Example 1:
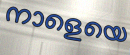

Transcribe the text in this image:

നാളെയെ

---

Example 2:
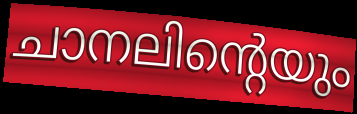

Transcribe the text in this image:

ചാനലിന്റെയും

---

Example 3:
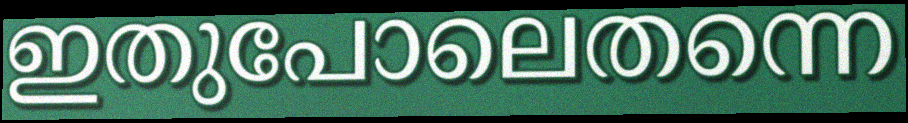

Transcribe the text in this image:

ഇതുപോലെതന്നെ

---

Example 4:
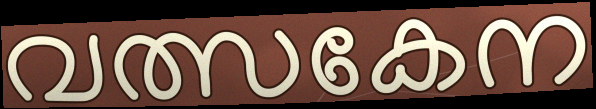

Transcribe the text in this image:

വത്സകേന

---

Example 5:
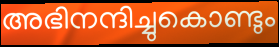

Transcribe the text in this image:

അഭിനന്ദിച്ചുകൊണ്ടും